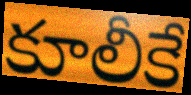
కూలీకే